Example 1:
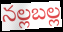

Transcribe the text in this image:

నల్లబల్ల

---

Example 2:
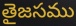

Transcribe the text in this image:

తైజసము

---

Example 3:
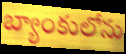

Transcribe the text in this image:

బ్యాంకులోను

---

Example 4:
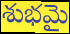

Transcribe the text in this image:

శుభమై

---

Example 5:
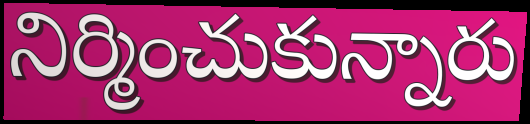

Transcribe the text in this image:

నిర్మించుకున్నారు